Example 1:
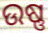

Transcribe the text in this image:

ଉଷ୍ଣ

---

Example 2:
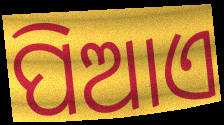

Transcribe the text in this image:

ପିଆଏ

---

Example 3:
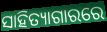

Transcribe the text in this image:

ସାହିତ୍ୟାଗାରରେ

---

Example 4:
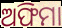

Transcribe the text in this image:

ଅଫିମା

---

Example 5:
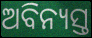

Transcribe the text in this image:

ଅବିନ୍ୟସ୍ତ